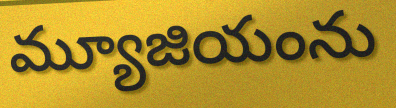
మ్యూజియంను